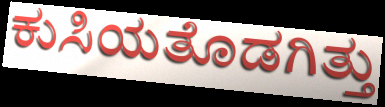
ಕುಸಿಯತೊಡಗಿತ್ತು